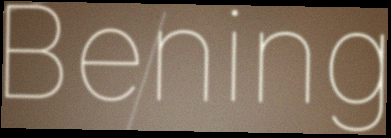
Bening